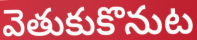
వెతుకుకొనుట